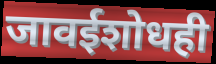
जावईशोधही